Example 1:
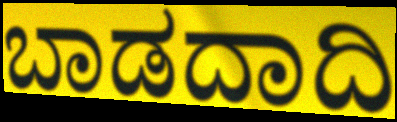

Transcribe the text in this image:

ಬಾಡದಾದಿ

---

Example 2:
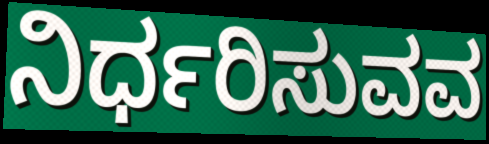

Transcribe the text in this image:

ನಿರ್ಧರಿಸುವವ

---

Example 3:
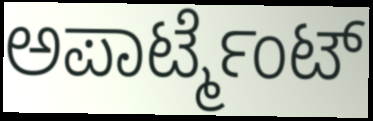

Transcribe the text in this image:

ಅಪಾರ್ಟ್ಮೆಂಟ್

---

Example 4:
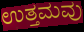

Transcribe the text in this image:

ಉತ್ತಮವು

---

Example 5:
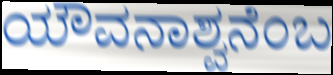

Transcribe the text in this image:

ಯೌವನಾಶ್ವನೆಂಬ